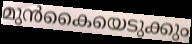
മുൻകൈയെടുക്കും